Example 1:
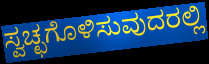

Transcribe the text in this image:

ಸ್ವಚ್ಛಗೊಳಿಸುವುದರಲ್ಲಿ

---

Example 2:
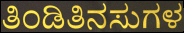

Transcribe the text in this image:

ತಿಂಡಿತಿನಸುಗಳ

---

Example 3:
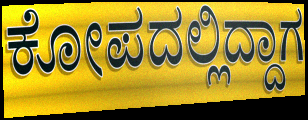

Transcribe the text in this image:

ಕೋಪದಲ್ಲಿದ್ದಾಗ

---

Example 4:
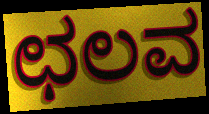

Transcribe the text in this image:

ಛಲವ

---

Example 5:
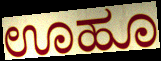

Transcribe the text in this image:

ಊಹೂ